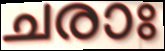
ചരാഃ